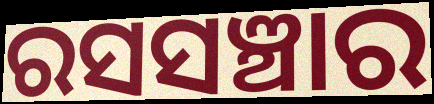
ରସସଞ୍ଚାର